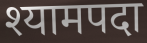
श्यामपदा